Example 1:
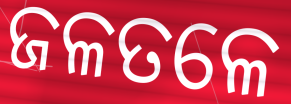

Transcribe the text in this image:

ଜଳତଳେ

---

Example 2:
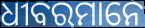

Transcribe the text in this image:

ଧୀବରମାନେ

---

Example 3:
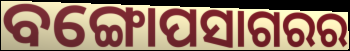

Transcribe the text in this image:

ବଙ୍ଗୋପସାଗରର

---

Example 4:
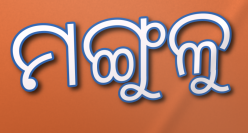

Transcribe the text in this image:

ମଙ୍ଗୁଳୁ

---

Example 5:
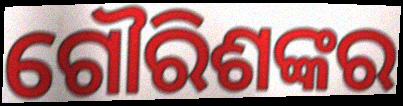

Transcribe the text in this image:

ଗୌରିଶଙ୍କର